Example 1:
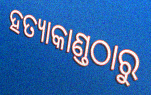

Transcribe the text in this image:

ହତ୍ୟାକାଣ୍ଡଠାରୁ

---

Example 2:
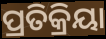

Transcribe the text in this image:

ପ୍ରତିକ୍ରିୟା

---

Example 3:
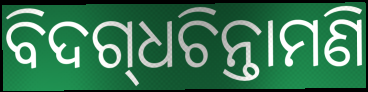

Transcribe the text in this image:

ବିଦଗ୍‌ଧଚିନ୍ତାମଣି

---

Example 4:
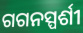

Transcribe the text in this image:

ଗଗନସ୍ପର୍ଶୀ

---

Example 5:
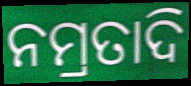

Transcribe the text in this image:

ନମ୍ରତାଦି